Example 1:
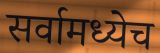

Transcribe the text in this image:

सर्वामध्येच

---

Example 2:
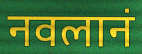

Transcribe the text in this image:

नवलानं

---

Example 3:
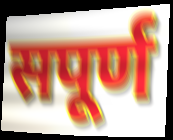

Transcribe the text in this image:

सपूर्ण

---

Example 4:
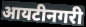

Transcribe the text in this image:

आयटीनगरी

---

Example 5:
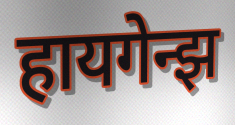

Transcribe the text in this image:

हायगेन्झ